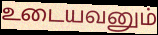
உடையவனும்